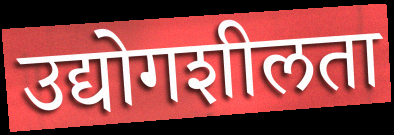
उद्योगशीलता